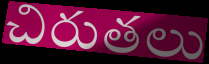
చిరుతలు